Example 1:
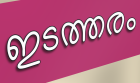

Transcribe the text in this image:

ഇടത്തരം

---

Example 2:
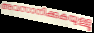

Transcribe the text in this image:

അവസാനിക്കുകയുള്ളൂ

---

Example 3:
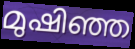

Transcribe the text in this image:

മുഷിഞ്ഞ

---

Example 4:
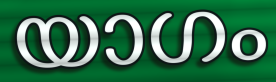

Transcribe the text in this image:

യാഗം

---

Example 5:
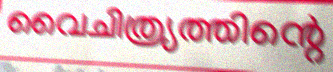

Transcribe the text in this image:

വൈചിത്ര്യത്തിന്റെ